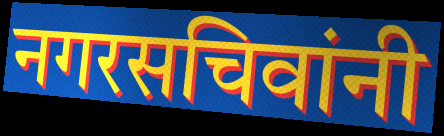
नगरसचिवांनी